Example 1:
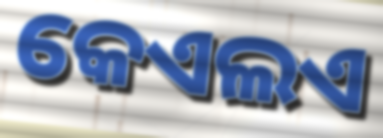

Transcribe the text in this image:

କେଏଲଏ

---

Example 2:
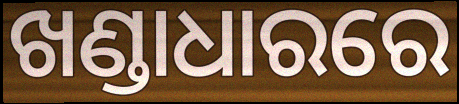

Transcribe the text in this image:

ଖଣ୍ଡାଧାରରେ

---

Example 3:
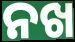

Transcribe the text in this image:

ନଖ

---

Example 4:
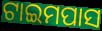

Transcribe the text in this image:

ଟାଇମପାସ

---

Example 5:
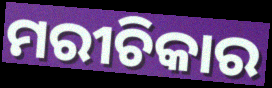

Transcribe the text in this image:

ମରୀଚିକାର